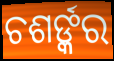
ଚଶର୍ଙ୍କର